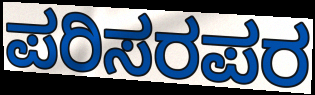
ಪರಿಸರಪರ